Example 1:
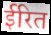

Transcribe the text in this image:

ईरित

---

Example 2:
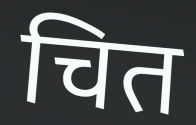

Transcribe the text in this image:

चित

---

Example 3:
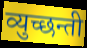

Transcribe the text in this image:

व्युच्छन्ती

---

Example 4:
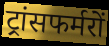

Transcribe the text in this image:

ट्रांसफर्मरों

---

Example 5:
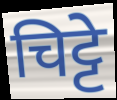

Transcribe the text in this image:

चिट्टे